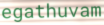
egathuvam